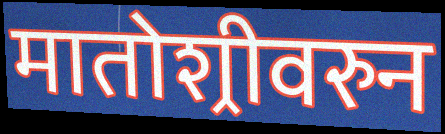
मातोश्रीवरुन